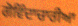
ਗੋਵਿੰਦਾਚਾਰੀਆ